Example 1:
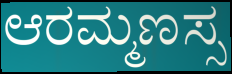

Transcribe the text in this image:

ಆರಮ್ಮಣಸ್ಸ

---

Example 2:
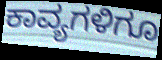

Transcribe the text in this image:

ಕಾವ್ಯಗಳಿಗೂ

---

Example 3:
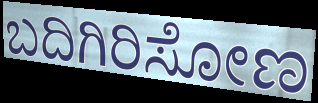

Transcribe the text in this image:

ಬದಿಗಿರಿಸೋಣ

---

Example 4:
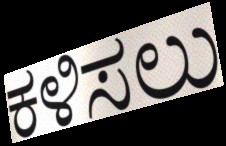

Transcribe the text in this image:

ಕಳಿಸಲು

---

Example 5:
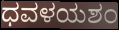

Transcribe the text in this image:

ಧವಳಯಶಂ